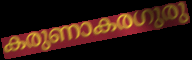
കരുണാകരഗുരു